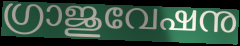
ഗ്രാജുവേഷനു